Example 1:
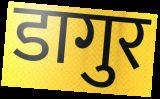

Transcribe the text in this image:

डागुर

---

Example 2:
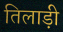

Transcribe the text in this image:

तिलाड़ी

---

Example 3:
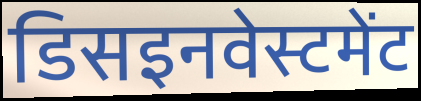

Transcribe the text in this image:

डिसइनवेस्टमेंट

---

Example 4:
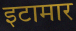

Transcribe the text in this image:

इटामार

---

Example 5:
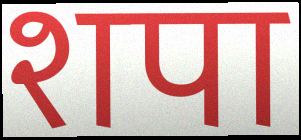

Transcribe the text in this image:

शपा